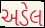
અડેલ